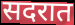
सदरात